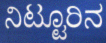
ನಿಟ್ಟೂರಿನ